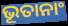
ଭୂତାନାଂ